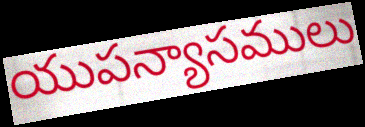
యుపన్యాసములు